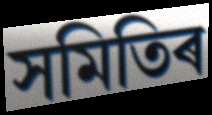
সমিতিৰ